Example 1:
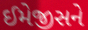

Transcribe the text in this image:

ઈમેજીસને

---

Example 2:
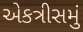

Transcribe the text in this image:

એકત્રીસમું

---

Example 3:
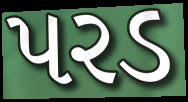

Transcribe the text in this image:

પરડ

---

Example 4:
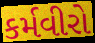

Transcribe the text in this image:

કર્મવીરો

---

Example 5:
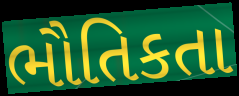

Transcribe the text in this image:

ભૌતિકતા